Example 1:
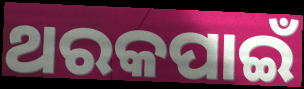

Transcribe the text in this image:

ଥରକପାଇଁ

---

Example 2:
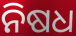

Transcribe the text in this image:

ନିଷଧ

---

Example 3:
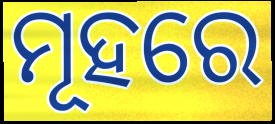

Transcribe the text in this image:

ମୂହରେ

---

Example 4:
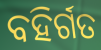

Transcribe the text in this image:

ବହିର୍ଗତ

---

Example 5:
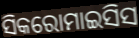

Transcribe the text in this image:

ସିକରୋମାଇସିସ